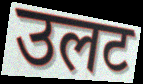
उलट